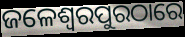
ଜଳେଶ୍ୱରପୁରଠାରେ